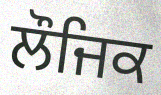
ਲੌਜਿਕ